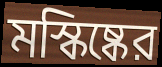
মস্কিষ্কের